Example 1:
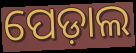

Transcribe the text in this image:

ପେଡ଼ାଲ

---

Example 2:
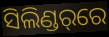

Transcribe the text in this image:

ସିଲିଣ୍ଡର୍‌ରେ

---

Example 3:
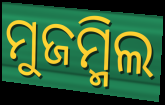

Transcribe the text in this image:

ମୁଜମ୍ମିଲ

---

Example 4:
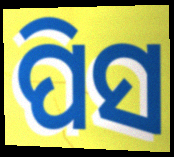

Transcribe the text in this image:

ପିସ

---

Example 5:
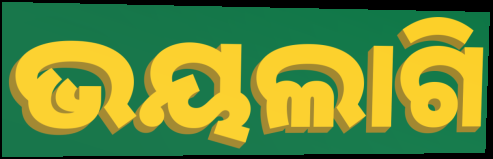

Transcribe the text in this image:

ଭୟଲାଗି